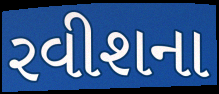
રવીશના